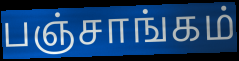
பஞ்சாங்கம்